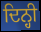
ਦਿਨ੍ਹੀ